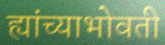
ह्यांच्याभोवती